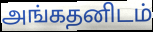
அங்கதனிடம்